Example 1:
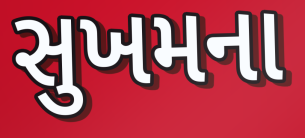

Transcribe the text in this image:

સુખમના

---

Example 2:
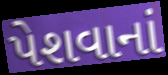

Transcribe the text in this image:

પેશવાનાં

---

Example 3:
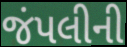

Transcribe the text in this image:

જંપલીની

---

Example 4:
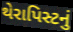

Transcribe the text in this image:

થેરાપિસ્ટનું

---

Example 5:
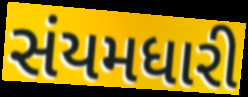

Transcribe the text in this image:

સંયમધારી